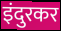
इंदुरकर